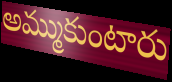
అమ్ముకుంటారు